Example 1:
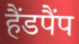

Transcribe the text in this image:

हैंडपैंप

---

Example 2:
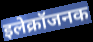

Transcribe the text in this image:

इलेक्रॉजनक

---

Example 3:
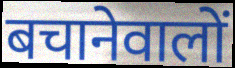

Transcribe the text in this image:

बचानेवालों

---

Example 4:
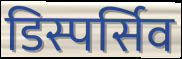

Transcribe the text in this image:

डिस्पर्सिव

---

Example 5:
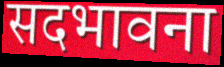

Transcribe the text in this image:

सदभावना